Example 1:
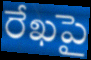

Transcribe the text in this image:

రేఖపై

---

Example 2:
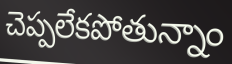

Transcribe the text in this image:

చెప్పలేకపోతున్నాం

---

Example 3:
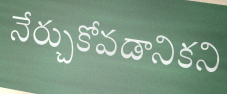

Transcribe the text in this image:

నేర్చుకోవడానికని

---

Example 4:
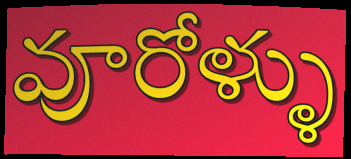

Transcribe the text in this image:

వూరోళ్ళు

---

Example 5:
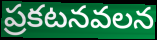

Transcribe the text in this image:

ప్రకటనవలన